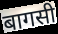
बागसी